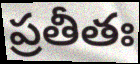
ప్రతీతః